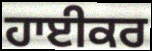
ਹਾਈਕਰ